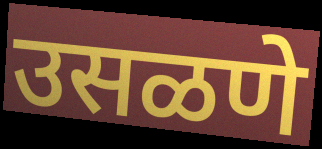
उसळणे